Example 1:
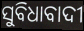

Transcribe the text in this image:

ସୁବିଧାବାଦୀ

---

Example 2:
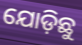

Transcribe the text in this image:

ଯୋଡ଼ିଛୁ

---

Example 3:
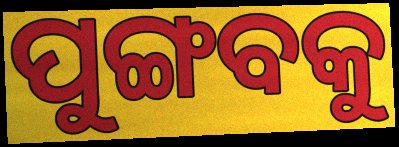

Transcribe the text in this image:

ପୁଙ୍ଗବକୁ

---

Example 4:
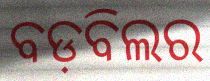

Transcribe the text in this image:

ବଡ଼ବିଲର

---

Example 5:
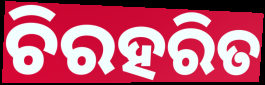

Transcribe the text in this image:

ଚିରହରିତ